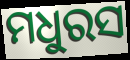
ମଧୁରସ